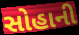
સોહાની